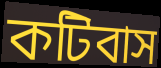
কটিবাস